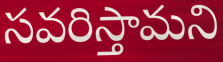
సవరిస్తామని